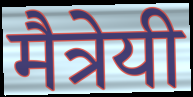
मैत्रेयी